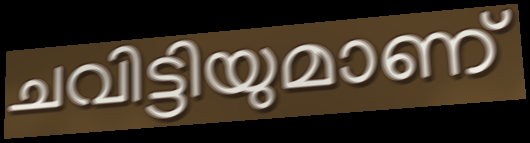
ചവിട്ടിയുമാണ്